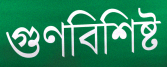
গুণবিশিষ্ট